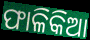
ଫାଳିକିଆ